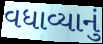
વધાવ્યાનું